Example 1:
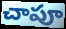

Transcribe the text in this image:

చాపూ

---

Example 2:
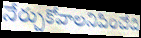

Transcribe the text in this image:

నేర్చుకోవాలనిపించేది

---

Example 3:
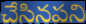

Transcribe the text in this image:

చేసినపని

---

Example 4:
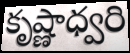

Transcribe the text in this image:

కృష్ణాధ్వరి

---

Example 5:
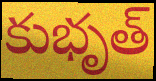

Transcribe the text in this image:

కుభృత్